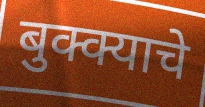
बुक्क्याचे